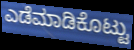
ಎಡೆಮಾಡಿಕೊಟ್ಟು